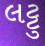
લટ્ટુ